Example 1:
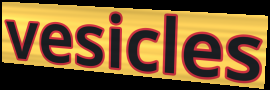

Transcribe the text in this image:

vesicles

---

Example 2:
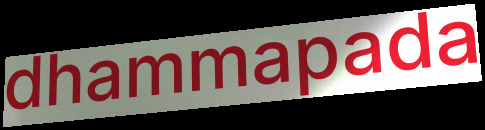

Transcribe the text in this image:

dhammapada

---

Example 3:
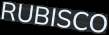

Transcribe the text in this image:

RUBISCO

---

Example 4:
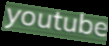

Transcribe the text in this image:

youtube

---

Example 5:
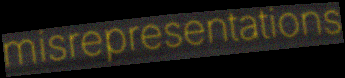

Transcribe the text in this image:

misrepresentations